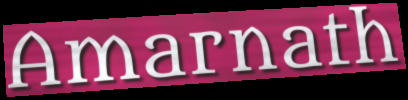
Amarnath